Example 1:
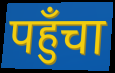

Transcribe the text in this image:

पहुँचा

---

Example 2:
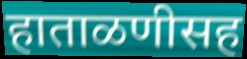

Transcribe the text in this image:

हाताळणीसह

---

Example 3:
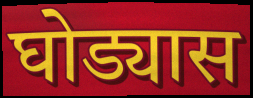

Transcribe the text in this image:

घोड्यास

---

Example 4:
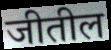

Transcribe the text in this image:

जीतील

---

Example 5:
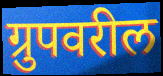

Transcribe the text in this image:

ग्रुपवरील